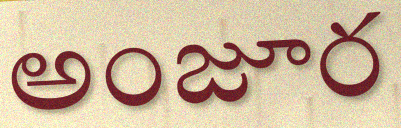
అంజూర